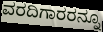
ವರದಿಗಾರರನ್ನೂ